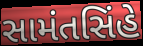
સામંતસિંહે